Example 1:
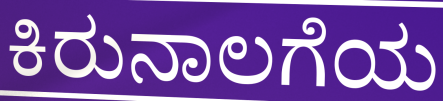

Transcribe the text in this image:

ಕಿರುನಾಲಗೆಯ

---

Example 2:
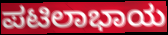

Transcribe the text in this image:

ಪಟಿಲಾಭಾಯ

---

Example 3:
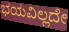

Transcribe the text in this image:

ಭಯವಿಲ್ಲದೇ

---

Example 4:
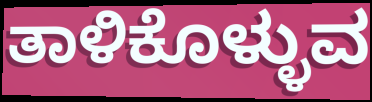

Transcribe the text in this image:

ತಾಳಿಕೊಳ್ಳುವ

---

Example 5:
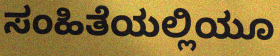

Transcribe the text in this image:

ಸಂಹಿತೆಯಲ್ಲಿಯೂ